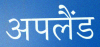
अपलैंड